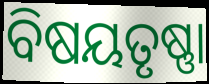
ବିଷୟତୃଷ୍ଣା